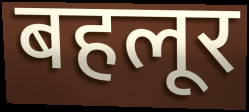
बहलूर